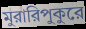
মুরারিপুকুরে